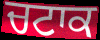
ਚਟਾਕ